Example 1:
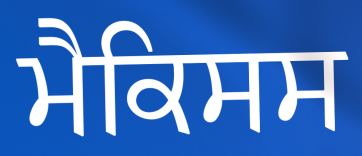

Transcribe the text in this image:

ਮੈਕਿਸਸ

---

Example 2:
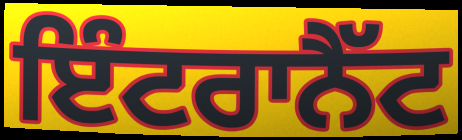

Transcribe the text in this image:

ਇੰਟਰਾਨੈੱਟ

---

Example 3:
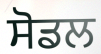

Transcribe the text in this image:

ਸੋਡਲ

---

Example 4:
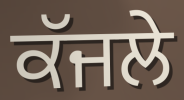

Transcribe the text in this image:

ਕੱਜਲੇ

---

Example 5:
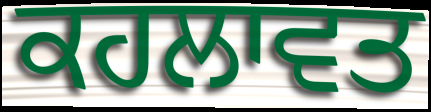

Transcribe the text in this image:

ਕਹਲਾਵਤ